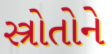
સ્ત્રોતોને